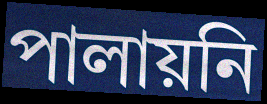
পালায়নি